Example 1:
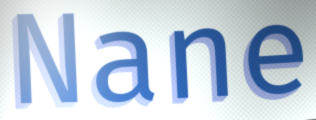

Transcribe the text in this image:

Nane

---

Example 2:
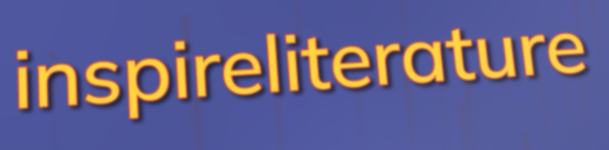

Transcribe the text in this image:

inspireliterature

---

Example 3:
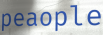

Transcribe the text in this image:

peaople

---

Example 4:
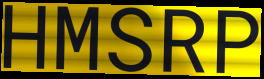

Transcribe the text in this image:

HMSRP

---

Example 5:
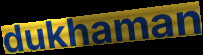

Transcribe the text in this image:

dukhaman